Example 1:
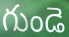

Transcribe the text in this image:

గుండె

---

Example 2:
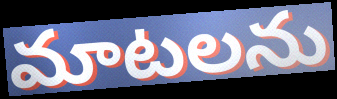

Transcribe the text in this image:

మాటలను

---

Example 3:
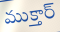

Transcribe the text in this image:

ముక్తార్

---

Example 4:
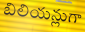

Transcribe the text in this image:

బిలియన్లుగా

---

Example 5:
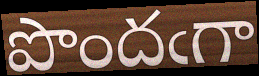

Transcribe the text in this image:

పొందఁగా